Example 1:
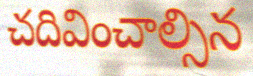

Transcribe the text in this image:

చదివించాల్సిన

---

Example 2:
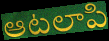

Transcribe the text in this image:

ఆటలాపి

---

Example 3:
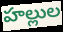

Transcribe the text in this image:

హల్లుల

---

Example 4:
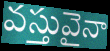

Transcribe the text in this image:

వస్తువైనా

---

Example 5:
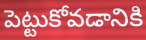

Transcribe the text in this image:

పెట్టుకోవడానికి